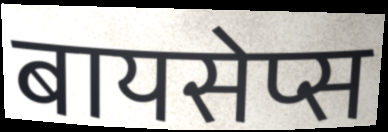
बायसेप्स